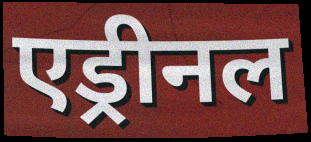
एड्रीनल